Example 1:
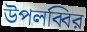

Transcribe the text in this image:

উপলব্বির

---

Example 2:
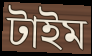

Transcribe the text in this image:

টাইম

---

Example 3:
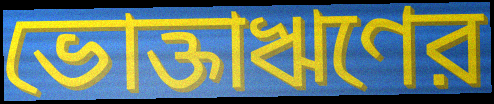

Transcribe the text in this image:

ভোক্তাঋণের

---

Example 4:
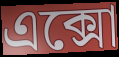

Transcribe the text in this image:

এক্সো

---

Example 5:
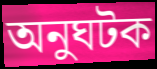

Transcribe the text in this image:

অনুঘটক